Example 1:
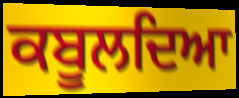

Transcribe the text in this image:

ਕਬੂਲਦਿਆ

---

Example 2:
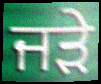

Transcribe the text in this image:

ਜੜੇ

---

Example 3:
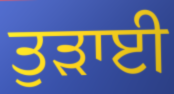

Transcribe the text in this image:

ਤੁੜਾਈ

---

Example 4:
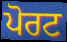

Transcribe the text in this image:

ਪੋਰਟ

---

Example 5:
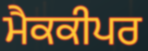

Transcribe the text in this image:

ਮੈਕਕੀਪਰ